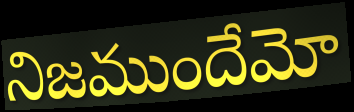
నిజముందేమో